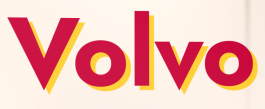
Volvo